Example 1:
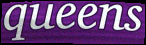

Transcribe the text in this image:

queens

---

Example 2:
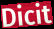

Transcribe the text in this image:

Dicit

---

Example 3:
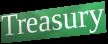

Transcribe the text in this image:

Treasury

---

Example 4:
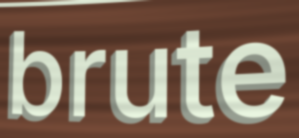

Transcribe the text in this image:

brute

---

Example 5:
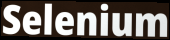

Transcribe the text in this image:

Selenium